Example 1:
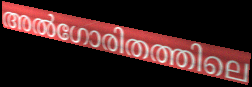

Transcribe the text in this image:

അൽഗോരിതത്തിലെ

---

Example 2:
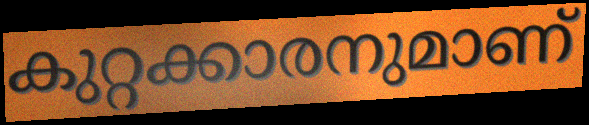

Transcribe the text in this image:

കുറ്റക്കാരനുമാണ്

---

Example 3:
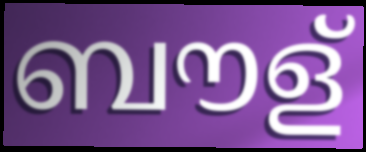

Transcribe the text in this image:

ബൗള്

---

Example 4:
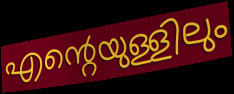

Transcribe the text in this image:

എന്റെയുള്ളിലും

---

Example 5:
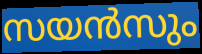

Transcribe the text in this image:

സയൻസും